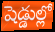
షెడ్డుల్లో